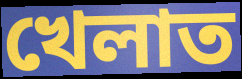
খেলাত